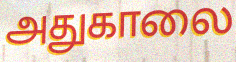
அதுகாலை